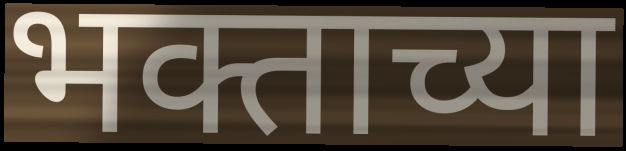
भक्ताच्या